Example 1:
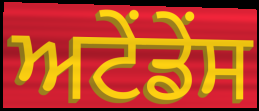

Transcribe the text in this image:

ਅਟੇਂਡੇਂਸ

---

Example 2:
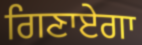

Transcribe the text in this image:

ਗਿਣਾਏਗਾ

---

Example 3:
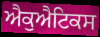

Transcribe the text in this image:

ਐਕੁਐਟਿਕਸ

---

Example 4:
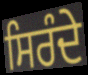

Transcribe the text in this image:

ਸਿਰੰਦੇ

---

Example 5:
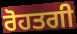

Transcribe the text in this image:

ਰੋਹਤਗੀ